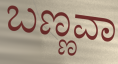
ಬಣ್ಣವಾ